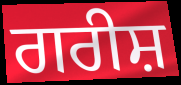
ਗਰੀਸ਼